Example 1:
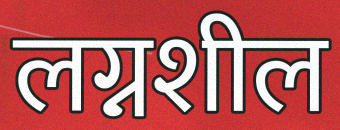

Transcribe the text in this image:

लग्नशील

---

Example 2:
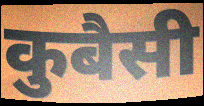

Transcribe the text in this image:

कुबैसी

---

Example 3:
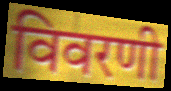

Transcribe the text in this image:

विवरणी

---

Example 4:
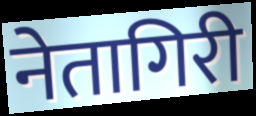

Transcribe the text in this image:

नेतागिरी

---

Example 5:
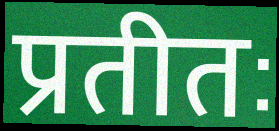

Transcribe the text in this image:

प्रतीतः